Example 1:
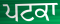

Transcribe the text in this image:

ਪਟਕਾ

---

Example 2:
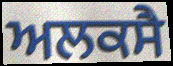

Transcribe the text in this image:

ਅਲਕਸੈ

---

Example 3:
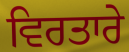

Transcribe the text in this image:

ਵਿਰਤਾਰੇ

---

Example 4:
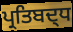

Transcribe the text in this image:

ਪ੍ਰਤਿਬਦ੍ਧ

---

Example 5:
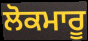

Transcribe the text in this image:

ਲੋਕਮਾਰੂ